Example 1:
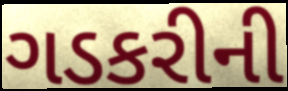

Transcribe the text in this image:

ગડકરીની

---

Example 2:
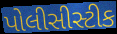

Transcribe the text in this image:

પોલીસીસ્ટીક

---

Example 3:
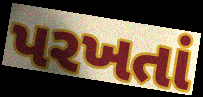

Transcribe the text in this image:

પરખતાં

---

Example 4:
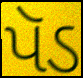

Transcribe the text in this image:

પૅડ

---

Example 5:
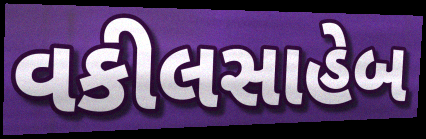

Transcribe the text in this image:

વકીલસાહેબ